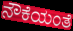
ನೌಕೆಯಂತೆ